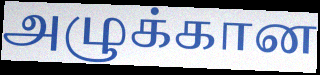
அழுக்கான